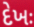
દેખઃ